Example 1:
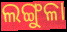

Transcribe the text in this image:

ଲଙ୍ଗୁଳା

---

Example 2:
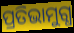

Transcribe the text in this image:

ପ୍ରତିଭାମୁଗ୍ଧ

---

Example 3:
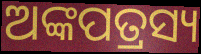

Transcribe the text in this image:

ଅଙ୍କପତ୍ରସ୍ୟ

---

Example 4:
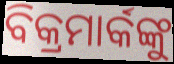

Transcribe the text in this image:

ବିକ୍ରମାର୍କଙ୍କୁ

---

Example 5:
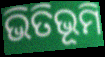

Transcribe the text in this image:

ଭିତିଭୂମି